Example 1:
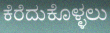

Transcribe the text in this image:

ಕೆರೆದುಕೊಳ್ಳಲು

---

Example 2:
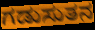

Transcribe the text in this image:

ಗಡುಸುತನ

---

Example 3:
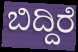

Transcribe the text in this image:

ಬಿದ್ದಿರೆ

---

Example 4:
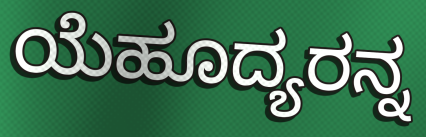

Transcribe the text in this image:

ಯೆಹೂದ್ಯರನ್ನ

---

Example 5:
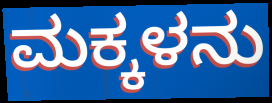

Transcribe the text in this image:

ಮಕ್ಕಳನು